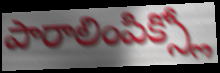
పారాలింపిక్స్లో